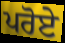
ਪਰੋਏ